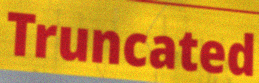
Truncated